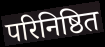
परिनिष्ठित